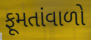
ફૂમતાંવાળો